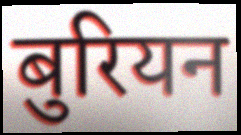
बुरियन